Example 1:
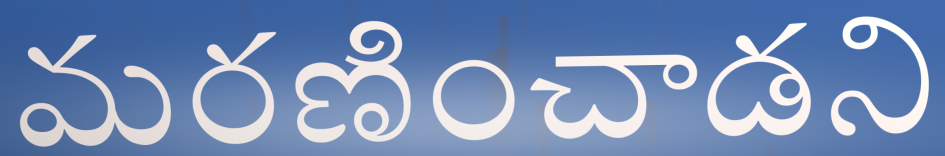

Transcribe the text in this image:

మరణించాడని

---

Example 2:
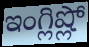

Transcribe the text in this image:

ఇంగ్లిష్లో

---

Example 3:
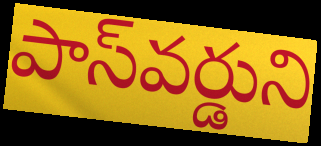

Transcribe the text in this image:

పాస్‌వర్డుని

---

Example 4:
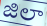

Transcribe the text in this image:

జిలా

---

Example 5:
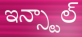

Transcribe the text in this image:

ఇన్స్టాల్